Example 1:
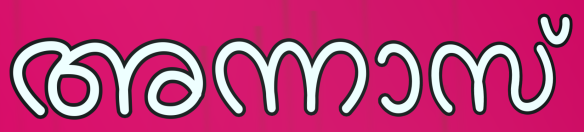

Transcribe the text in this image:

അന്നാസ്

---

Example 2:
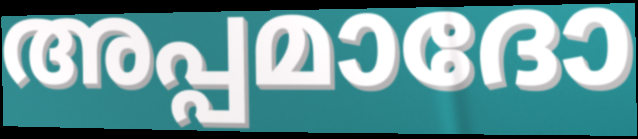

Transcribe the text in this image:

അപ്പമാദോ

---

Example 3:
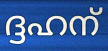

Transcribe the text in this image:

ദ്ദഹന്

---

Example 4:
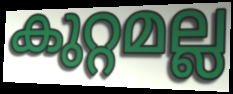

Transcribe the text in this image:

കുറ്റമല്ല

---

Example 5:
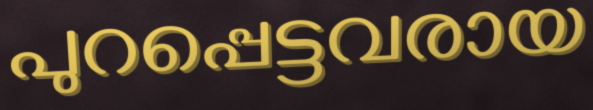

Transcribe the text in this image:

പുറപ്പെട്ടവരായ